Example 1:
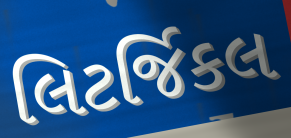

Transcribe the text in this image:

લિટર્જિકલ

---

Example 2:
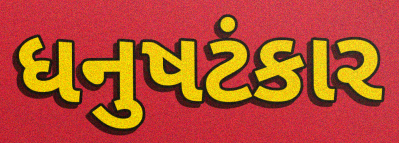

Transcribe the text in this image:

ધનુષટંકાર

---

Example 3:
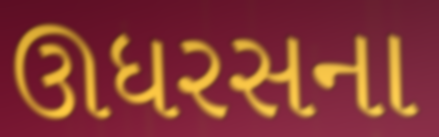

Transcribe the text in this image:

ઊધરસના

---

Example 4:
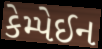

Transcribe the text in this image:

કેમ્પેઈન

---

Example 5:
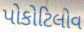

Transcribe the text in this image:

પોકોટિલોવ